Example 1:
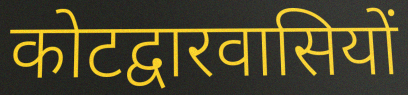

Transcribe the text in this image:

कोटद्वारवासियों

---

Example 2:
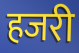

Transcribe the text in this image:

हजरी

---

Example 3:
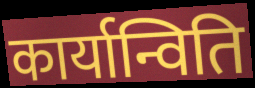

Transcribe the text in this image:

कार्यान्विति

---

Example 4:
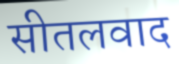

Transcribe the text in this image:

सीतलवाद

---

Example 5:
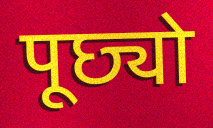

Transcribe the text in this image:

पूछ्यो